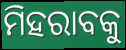
ମିହରାବକୁ